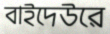
বাইদেউৱে